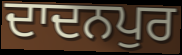
ਦਾਦਨਪੁਰ